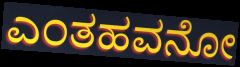
ಎಂತಹವನೋ